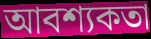
আবশ্যকতা